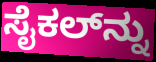
ಸೈಕಲ್‌ನ್ನು